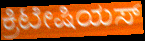
ಕ್ರಿಟೇಷಿಯಸ್